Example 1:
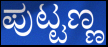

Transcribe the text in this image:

ಪುಟ್ಟಣ್ಣ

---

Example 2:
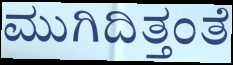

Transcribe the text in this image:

ಮುಗಿದಿತ್ತಂತೆ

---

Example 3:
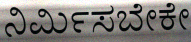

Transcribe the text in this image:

ನಿರ್ಮಿಸಬೇಕೇ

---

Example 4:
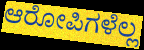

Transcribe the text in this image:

ಆರೋಪಿಗಳೆಲ್ಲ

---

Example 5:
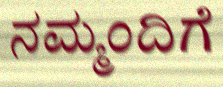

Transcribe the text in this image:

ನಮ್ಮಂದಿಗೆ